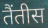
तैंतीस